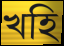
খহি